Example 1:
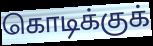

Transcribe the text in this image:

கொடிக்குக்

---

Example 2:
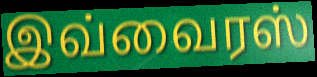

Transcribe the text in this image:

இவ்வைரஸ்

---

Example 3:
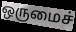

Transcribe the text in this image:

ஒருமைச்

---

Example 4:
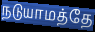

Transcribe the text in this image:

நடுயாமத்தே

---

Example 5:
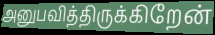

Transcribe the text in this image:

அனுபவித்திருக்கிறேன்